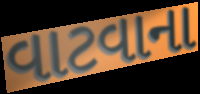
વાટવાના